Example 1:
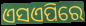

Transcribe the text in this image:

ଏସଏପିରେ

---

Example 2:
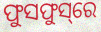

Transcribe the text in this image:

ଫୁସଫୁସ୍‌ରେ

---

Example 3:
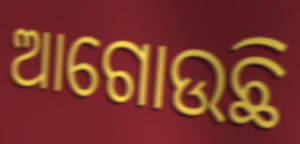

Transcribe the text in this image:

ଆଗୋଉଛି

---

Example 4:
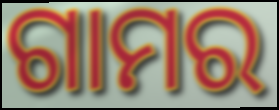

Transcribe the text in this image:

ଗାମର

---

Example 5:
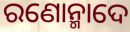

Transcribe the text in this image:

ରଣୋନ୍ମାଦେ